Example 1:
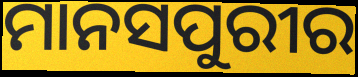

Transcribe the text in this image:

ମାନସପୁରୀର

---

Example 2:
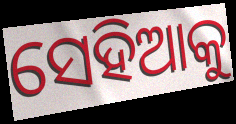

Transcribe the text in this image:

ସେହିଆକୁ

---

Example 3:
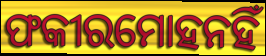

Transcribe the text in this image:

ଫକୀରମୋହନହିଁ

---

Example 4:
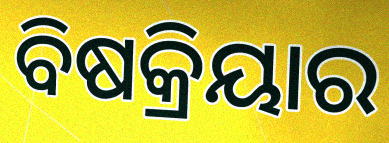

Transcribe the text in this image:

ବିଷକ୍ରିୟାର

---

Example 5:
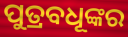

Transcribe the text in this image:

ପୁତ୍ରବଧୂଙ୍କର